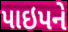
પાઇપને